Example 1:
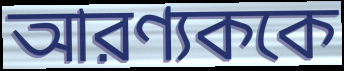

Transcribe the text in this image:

আরণ্যককে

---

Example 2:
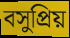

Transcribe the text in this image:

বসুপ্রিয়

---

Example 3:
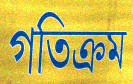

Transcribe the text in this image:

গতিক্রম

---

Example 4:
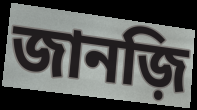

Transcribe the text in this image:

জানজ়ি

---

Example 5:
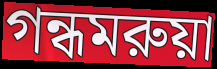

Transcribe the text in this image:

গন্ধমরুয়া